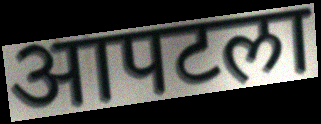
आपटला